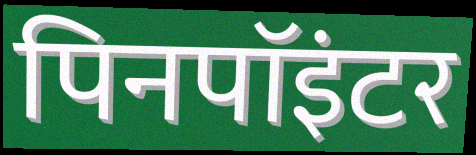
पिनपॉइंटर